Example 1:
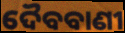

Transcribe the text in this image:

ଦୈବବାଣୀ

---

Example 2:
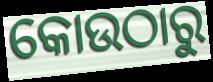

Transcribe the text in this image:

କୋଉଠାରୁ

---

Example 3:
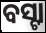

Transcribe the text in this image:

ବସ୍ଟା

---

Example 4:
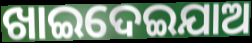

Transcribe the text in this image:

ଖାଇଦେଇଯାଅ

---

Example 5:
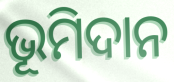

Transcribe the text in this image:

ଭୂମିଦାନ